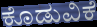
ಕೊಡುವಿಕೆ